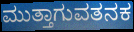
ಮುತ್ತಾಗುವತನಕ